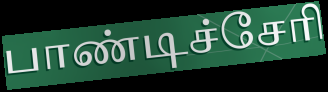
பாண்டிச்சேரி